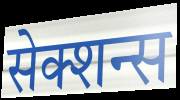
सेक्शन्स